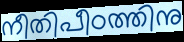
നീതിപീഠത്തിനു